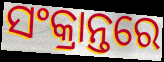
ସଂକ୍ରାନ୍ତରେ